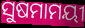
ସୁଷମାମୟୀ